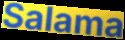
Salama